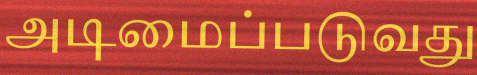
அடிமைப்படுவது